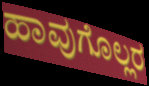
ಹಾವುಗೊಲ್ಲರ